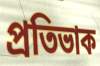
প্ৰতিভাক